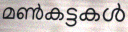
മൺകട്ടകൾ